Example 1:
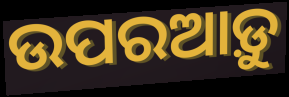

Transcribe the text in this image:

ଉପରଆଡ଼ୁ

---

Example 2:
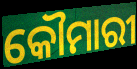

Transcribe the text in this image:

କୌମାରୀ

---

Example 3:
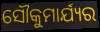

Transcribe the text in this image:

ସୌକୁମାର୍ଯ୍ୟର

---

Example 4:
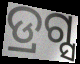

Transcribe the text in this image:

ଡ୍ରଗ୍ସ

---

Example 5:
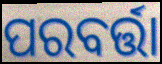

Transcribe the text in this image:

ପରବର୍ତ୍ତା